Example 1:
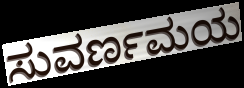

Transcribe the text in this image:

ಸುವರ್ಣಮಯ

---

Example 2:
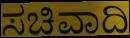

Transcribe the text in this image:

ಸಚಿವಾದಿ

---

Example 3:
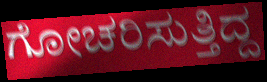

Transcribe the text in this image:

ಗೋಚರಿಸುತ್ತಿದ್ದ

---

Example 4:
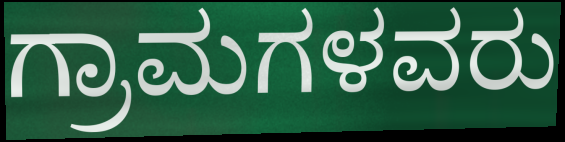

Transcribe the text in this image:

ಗ್ರಾಮಗಳವರು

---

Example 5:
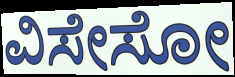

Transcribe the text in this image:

ವಿಸೇಸೋ